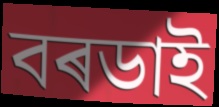
বৰডাই